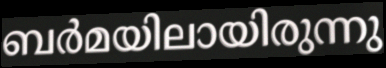
ബർമയിലായിരുന്നു